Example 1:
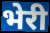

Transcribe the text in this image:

भेरी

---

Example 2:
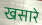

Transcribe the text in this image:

खसारे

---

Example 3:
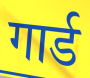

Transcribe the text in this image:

गार्ड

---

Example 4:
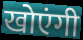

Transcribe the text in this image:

खोएंगी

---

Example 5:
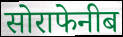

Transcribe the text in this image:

सोराफेनीब